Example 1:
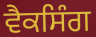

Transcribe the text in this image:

ਵੈਕਸਿੰਗ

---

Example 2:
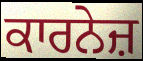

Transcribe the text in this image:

ਕਾਰਨੇਜ਼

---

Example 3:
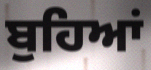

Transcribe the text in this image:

ਬੁਹਿਆਂ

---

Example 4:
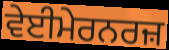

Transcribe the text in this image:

ਵੇਈਮੇਰਨਰਜ਼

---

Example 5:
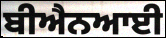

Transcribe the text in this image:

ਬੀਐਨਆਈ